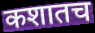
कशातच